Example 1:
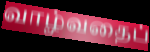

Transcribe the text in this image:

வாழ்வதைப்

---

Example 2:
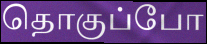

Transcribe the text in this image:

தொகுப்போ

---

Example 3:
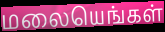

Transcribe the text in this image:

மலையெங்கள்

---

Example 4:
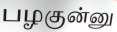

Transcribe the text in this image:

பழகுன்னு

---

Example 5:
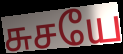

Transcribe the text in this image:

சுசயே